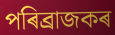
পৰিব্ৰাজকৰ